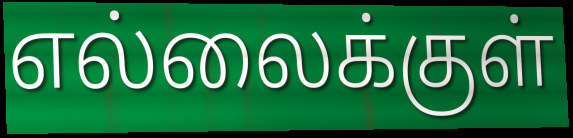
எல்லைக்குள்